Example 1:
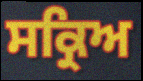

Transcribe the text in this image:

ਸਕ੍ਰਿਅ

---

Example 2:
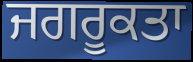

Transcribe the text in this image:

ਜਗਰੂਕਤਾ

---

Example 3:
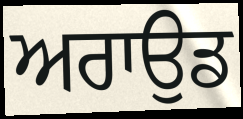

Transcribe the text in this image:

ਅਰਾਉਡ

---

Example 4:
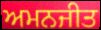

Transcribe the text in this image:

ਅਮਨਜੀਤ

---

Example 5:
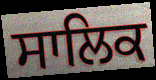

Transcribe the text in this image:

ਸਾਲਿਕ